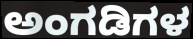
ಅಂಗಡಿಗಳ